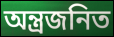
অন্ত্রজনিত